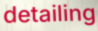
detailing